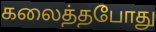
கலைத்தபோது